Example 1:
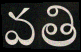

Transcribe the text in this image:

వతి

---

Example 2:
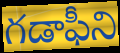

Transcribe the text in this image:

గడాఫీని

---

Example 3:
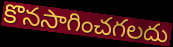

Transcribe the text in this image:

కొనసాగించగలదు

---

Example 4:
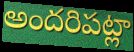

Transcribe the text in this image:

అందరిపట్లా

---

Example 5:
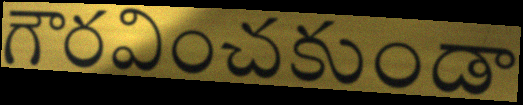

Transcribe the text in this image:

గౌరవించకుండా